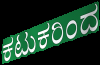
ಕಟುಕರಿಂದ